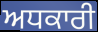
ਅਧਕਾਰੀ